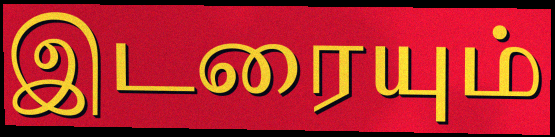
இடரையும்